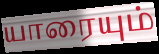
யாரையும்